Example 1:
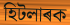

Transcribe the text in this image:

হিটলাৰক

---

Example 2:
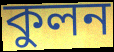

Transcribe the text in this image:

কুলন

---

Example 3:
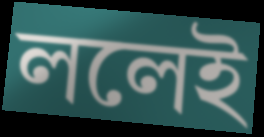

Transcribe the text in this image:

ললেই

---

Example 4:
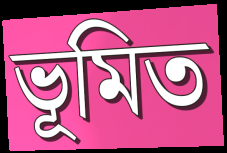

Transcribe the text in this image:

ভূমিত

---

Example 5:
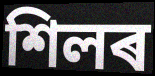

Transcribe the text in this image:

শিলৰ